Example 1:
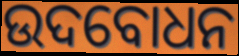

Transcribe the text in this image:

ଉଦବୋଧନ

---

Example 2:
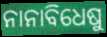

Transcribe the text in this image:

ନାନାବିଧେଷୁ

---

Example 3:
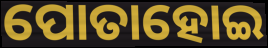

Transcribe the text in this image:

ପୋତାହୋଇ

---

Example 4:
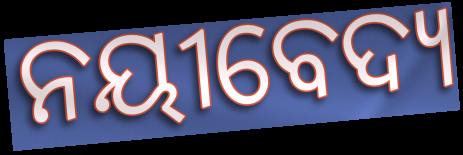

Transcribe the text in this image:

ନୟୀବେଦ୍ୟ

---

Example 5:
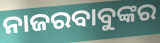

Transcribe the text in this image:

ନାଜରବାବୁଙ୍କର